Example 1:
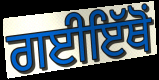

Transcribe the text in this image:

ਗਈਇੱਥੋਂ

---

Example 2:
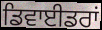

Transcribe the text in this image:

ਡਿਵਾਈਡਰਾਂ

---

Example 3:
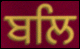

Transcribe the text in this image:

ਬਲਿ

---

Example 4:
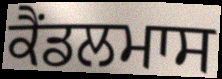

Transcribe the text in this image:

ਕੈਂਡਲਮਾਸ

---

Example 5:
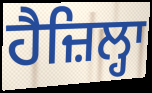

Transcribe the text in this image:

ਹੈਜ਼ਿਲ੍ਹਾ